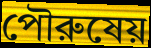
পৌরুষেয়